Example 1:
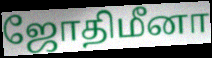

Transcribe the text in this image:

ஜோதிமீனா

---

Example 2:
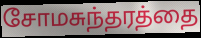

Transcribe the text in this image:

சோமசுந்தரத்தை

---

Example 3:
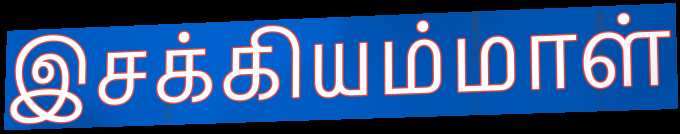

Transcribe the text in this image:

இசக்கியம்மாள்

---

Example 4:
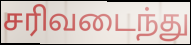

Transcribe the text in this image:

சரிவடைந்து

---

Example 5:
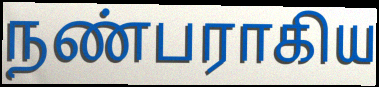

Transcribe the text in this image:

நண்பராகிய